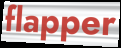
flapper